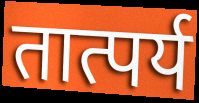
तात्पर्य